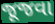
જૂજવા